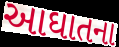
આઘાતના